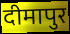
दीमापुर